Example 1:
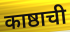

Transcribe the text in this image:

काष्ठाची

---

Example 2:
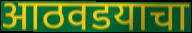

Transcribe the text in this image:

आठवडयाचा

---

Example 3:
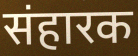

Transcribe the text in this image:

संहारक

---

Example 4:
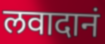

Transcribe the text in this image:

लवादानं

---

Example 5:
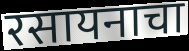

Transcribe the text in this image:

रसायनाचा